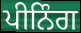
ਪੀਨਿੰਗ